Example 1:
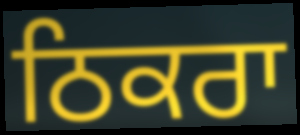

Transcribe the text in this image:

ਠਿਕਰਾ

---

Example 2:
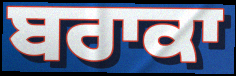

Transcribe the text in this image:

ਬਰਾਕਾ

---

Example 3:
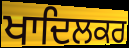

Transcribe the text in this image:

ਖਾਦਿਲਕਰ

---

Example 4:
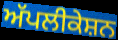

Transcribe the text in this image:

ਅੱਪਲੀਕੇਸ਼ਨ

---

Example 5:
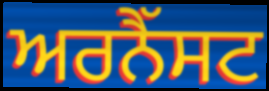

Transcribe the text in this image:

ਅਰਨੈੱਸਟ